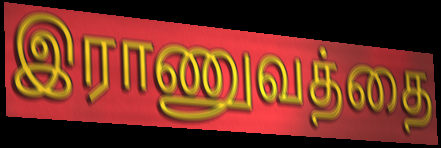
இராணுவத்தை